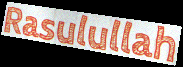
Rasulullah